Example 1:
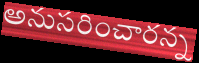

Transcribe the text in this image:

అనుసరించారన్న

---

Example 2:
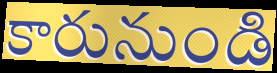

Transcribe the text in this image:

కారునుండి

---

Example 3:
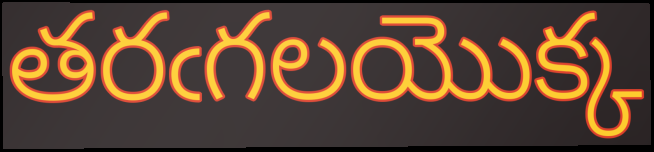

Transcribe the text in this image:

తరఁగలయొక్క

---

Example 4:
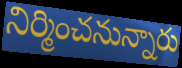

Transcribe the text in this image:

నిర్మించనున్నారు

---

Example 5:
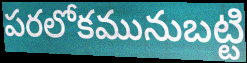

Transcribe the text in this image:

పరలోకమునుబట్టి